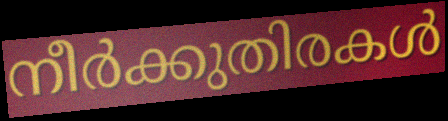
നീർക്കുതിരകൾ